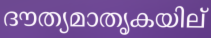
ദൗത്യമാതൃകയില്